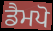
ਡੈਮਪੋ